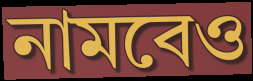
নামবেও